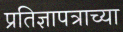
प्रतिज्ञापत्राच्या